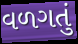
વળગતું